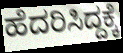
ಹೆದರಿಸಿದ್ದಕ್ಕೆ